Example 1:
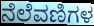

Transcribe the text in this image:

ನೆಲೆವಣಿಗಳ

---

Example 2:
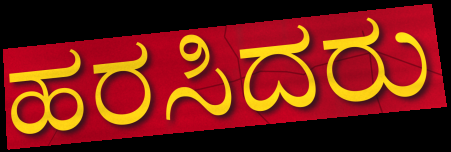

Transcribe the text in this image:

ಹರಸಿದರು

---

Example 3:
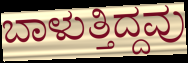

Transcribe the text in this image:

ಬಾಳುತ್ತಿದ್ದವು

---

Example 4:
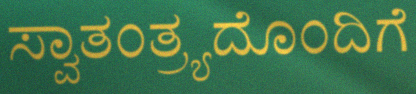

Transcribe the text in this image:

ಸ್ವಾತಂತ್ರ್ಯದೊಂದಿಗೆ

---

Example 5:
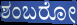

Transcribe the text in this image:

ಶಂಬರೋ